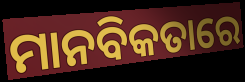
ମାନବିକତାରେ